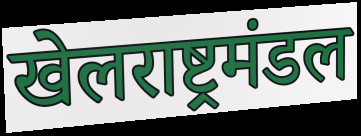
खेलराष्ट्रमंडल